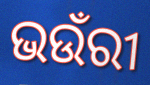
ଭଉଁରୀ